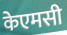
केएमसी